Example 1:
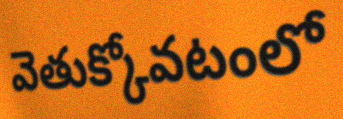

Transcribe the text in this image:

వెతుక్కోవటంలో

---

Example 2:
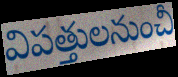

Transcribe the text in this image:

విపత్తులనుంచీ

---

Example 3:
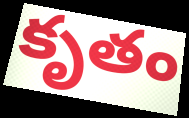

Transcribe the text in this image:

కృతం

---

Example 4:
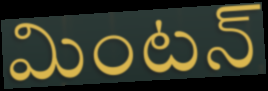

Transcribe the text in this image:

మింటన్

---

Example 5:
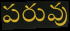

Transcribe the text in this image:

పరువు